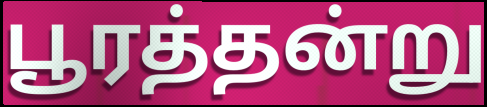
பூரத்தன்று